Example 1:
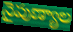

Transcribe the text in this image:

నైపుణ్యాల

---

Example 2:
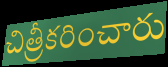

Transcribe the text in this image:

చిత్రీకరించారు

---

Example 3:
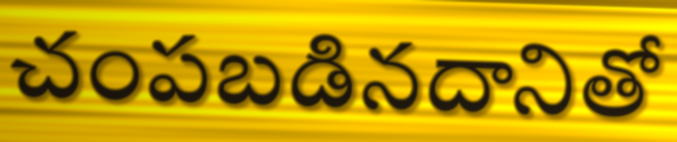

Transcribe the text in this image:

చంపబడినదానితో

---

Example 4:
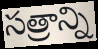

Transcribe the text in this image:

సత్రాన్ని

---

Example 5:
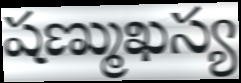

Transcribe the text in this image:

షణ్ముఖస్య